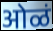
ओळं